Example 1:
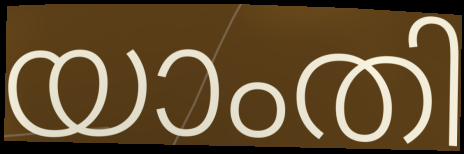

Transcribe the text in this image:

യാംതി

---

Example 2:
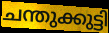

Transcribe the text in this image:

ചന്തുക്കുട്ടി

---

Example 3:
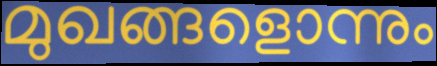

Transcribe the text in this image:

മുഖങ്ങളൊന്നും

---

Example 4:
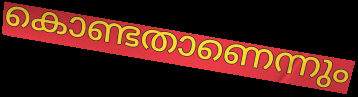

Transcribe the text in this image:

കൊണ്ടതാണെന്നും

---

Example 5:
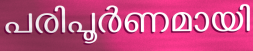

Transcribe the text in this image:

പരിപൂർണമായി